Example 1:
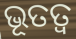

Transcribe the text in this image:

ଭୂତତ୍ୱ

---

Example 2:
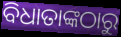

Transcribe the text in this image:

ବିଧାତାଙ୍କଠାରୁ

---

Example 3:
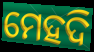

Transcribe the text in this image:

ମେହଦି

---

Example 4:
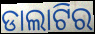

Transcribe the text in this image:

ଡାଲାଟିର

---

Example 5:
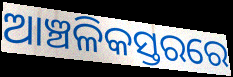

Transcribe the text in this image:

ଆଞ୍ଚଳିକସ୍ତରରେ